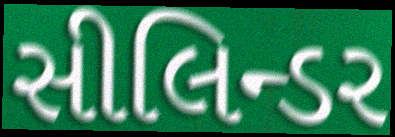
સીલિન્ડર